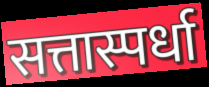
सत्तास्पर्धा